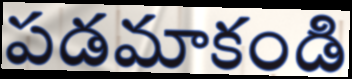
పడమాకండి